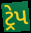
ટ્રેપ